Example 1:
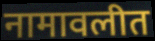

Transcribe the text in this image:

नामावलीत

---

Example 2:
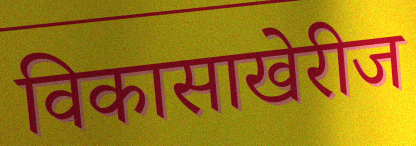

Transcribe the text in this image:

विकासाखेरीज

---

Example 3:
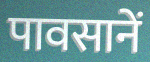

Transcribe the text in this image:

पावसानें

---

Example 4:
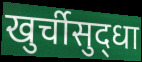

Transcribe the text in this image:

खुर्चीसुद्धा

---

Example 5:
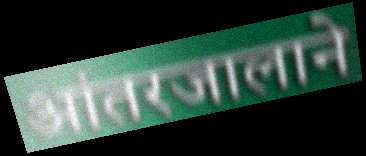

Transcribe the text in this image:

आंतरजालाने